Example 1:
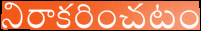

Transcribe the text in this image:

నిరాకరించటం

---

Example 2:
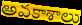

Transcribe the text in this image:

అవకాశాలు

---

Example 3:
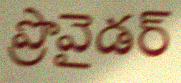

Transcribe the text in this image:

ప్రొవైడర్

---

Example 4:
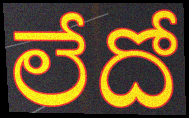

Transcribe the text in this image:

లేదో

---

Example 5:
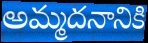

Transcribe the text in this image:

అమ్మదనానికి